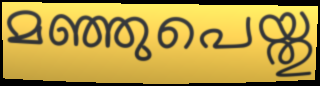
മഞ്ഞുപെയ്തു